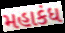
મહાકંધ